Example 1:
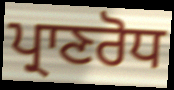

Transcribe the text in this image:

ਪ੍ਰਾਣਰੋਧ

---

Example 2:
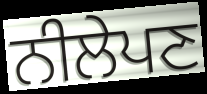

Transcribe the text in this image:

ਨੀਲੇਪਣ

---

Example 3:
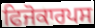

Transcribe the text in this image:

ਫਿਜੋਕਾਰਪਸ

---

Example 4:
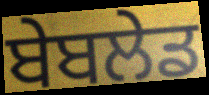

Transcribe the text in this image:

ਬੇਬਲੇਡ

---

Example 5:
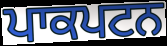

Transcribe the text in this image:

ਪਾਕਪਟਨ